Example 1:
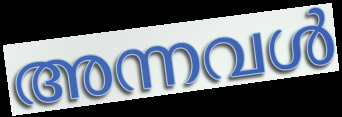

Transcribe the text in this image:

അന്നവൾ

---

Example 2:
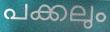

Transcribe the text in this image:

പക്കലും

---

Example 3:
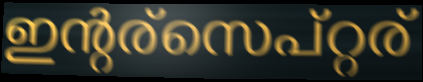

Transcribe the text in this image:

ഇന്റര്സെപ്റ്റര്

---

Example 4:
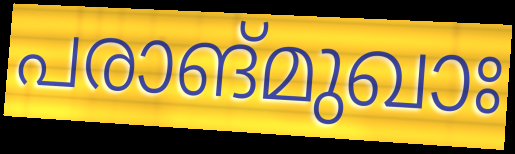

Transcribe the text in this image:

പരാങ്മുഖാഃ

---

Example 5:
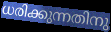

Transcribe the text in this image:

ധരിക്കുന്നതിനു